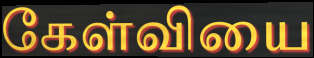
கேள்வியை